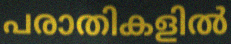
പരാതികളിൽ